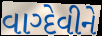
વાગ્દેવીને